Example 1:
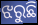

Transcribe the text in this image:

ଝରୁଛି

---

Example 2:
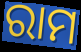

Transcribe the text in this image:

ରାମ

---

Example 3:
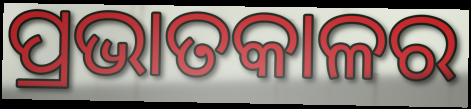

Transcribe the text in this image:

ପ୍ରଭାତକାଳର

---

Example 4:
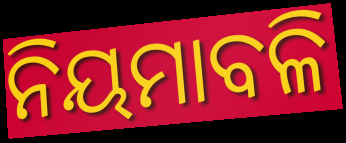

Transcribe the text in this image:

ନିୟମାବଳି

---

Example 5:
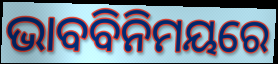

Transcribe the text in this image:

ଭାବବିନିମୟରେ